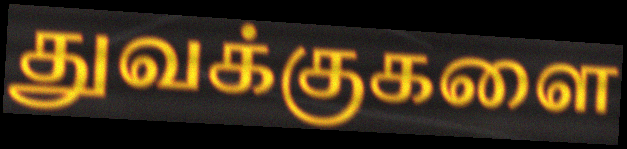
துவக்குகளை